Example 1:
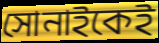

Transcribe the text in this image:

সোনাইকেই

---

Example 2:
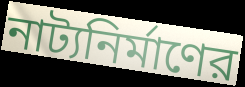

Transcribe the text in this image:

নাট্যনির্মাণের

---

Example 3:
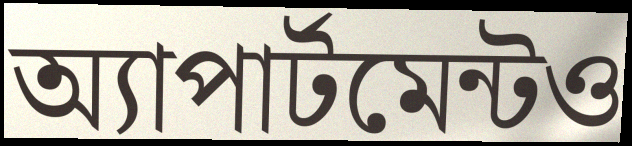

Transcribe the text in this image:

অ্যাপার্টমেন্টও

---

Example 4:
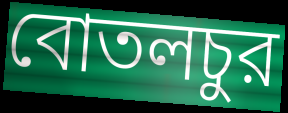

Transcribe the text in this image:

বোতলচুর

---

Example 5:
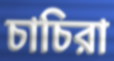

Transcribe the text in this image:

চাচিরা